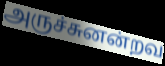
அருச்சுனன்றவ